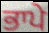
ਭਾਪੇ